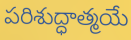
పరిశుద్ధాత్మయే